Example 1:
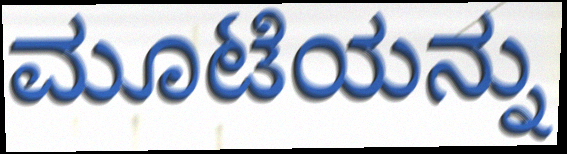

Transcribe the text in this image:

ಮೂಟೆಯನ್ನು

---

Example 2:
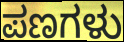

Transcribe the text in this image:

ಪಣಗಳು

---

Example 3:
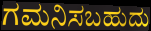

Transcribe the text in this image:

ಗಮನಿಸಬಹುದು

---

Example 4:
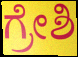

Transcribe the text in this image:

ಗ್ರೇಶಿ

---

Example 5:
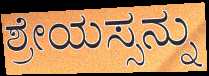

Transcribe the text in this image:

ಶ್ರೇಯಸ್ಸನ್ನು